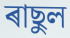
ৰাছুল